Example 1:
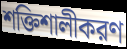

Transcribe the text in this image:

শক্তিশালীকরণ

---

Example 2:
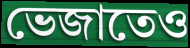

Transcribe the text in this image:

ভেজাতেও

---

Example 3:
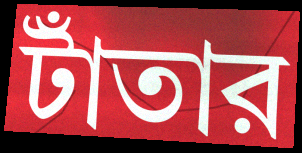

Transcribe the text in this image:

টাঁতার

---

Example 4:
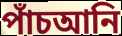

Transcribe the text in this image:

পাঁচআনি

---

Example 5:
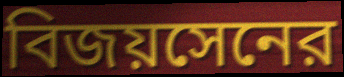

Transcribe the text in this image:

বিজয়সেনের